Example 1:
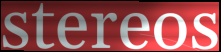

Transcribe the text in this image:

stereos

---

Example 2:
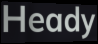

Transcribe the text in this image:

Heady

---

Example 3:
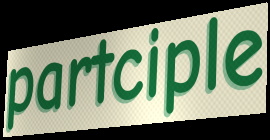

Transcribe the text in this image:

partciple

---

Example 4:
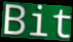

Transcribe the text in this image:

Bit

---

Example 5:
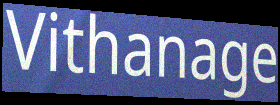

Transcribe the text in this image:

Vithanage